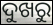
ଦୁଖରୁ